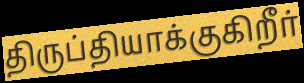
திருப்தியாக்குகிறீர்